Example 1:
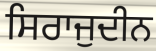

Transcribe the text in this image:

ਸਿਰਾਜੁਦੀਨ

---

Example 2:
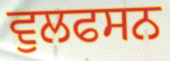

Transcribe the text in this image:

ਵੁਲਫਸਨ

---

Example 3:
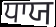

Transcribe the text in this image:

ਧਾਯ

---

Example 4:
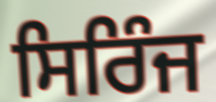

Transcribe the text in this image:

ਸਿਰਿੰਜ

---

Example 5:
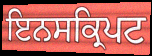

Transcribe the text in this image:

ਇਨਸਕ੍ਰਿਪਟ